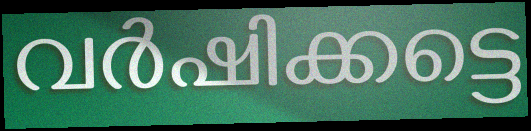
വർഷിക്കട്ടെ